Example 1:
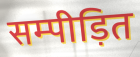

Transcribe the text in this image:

सम्पीड़ित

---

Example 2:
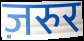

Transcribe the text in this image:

ज़रुर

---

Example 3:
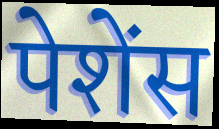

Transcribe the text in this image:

पेशेंस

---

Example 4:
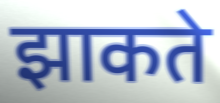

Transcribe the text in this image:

झाकते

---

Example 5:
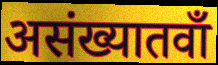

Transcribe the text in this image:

असंख्यातवाँ